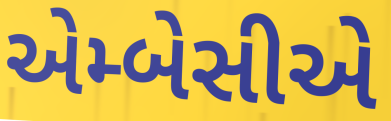
એમ્બેસીએ